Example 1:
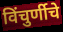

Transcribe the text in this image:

विंचुर्णीचे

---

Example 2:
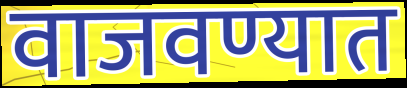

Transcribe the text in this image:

वाजवण्यात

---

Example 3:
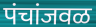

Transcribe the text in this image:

पंचांजवळ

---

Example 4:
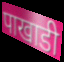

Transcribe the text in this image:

पाखाडी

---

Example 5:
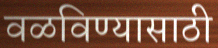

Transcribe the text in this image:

वळविण्यासाठी